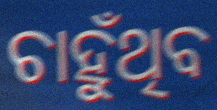
ଚାହୁଁଥିବ